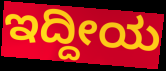
ಇದ್ದೀಯ